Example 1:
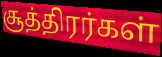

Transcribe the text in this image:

சூத்திரர்கள்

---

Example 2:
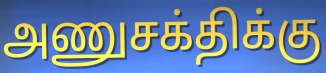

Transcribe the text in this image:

அணுசக்திக்கு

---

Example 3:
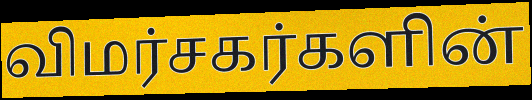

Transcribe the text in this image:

விமர்சகர்களின்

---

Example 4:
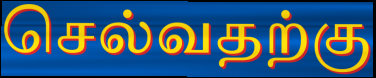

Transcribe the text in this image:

செல்வதற்கு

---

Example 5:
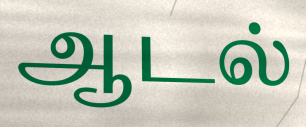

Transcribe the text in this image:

ஆடல்